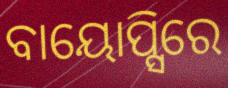
ବାୟୋପ୍ସିରେ